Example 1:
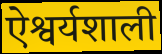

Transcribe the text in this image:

ऐश्वर्यशाली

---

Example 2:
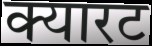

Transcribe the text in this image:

क्यारट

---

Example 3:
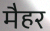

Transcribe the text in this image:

मैहर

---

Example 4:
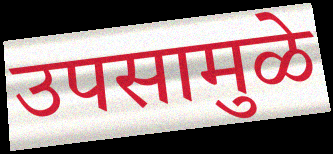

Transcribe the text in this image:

उपसामुळे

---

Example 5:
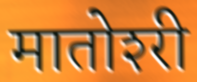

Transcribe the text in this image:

मातोश्री